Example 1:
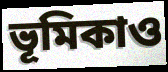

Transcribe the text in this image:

ভূমিকাও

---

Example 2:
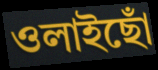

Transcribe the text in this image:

ওলাইছোঁ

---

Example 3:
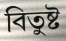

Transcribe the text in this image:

বিতুষ্ট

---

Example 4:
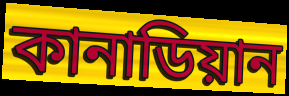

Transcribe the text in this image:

কানাডিয়ান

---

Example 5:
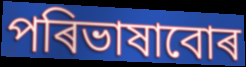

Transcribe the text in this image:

পৰিভাষাবোৰ